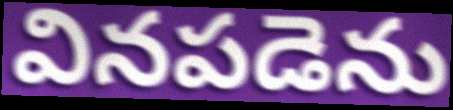
వినపడెను